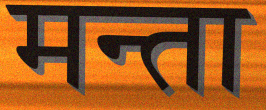
मन्ता